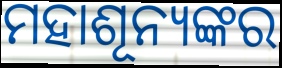
ମହାଶୂନ୍ୟଙ୍କର